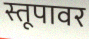
स्तूपावर